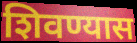
शिवण्यास